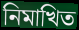
নিমাখিত